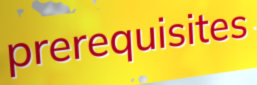
prerequisites